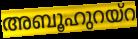
അബൂഹുറയ്റ